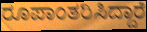
ರೂಪಾಂತರಿಸಿದ್ದಾರೆ